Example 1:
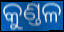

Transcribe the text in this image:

କୁଣ୍ତଳ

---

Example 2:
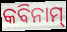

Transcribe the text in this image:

କବିନାମ୍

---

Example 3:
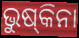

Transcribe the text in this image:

ଭୁଷ୍‌କିନା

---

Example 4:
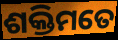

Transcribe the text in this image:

ଶକ୍ତିମତେ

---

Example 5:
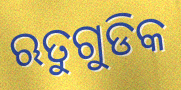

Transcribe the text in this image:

ଋତୁଗୁଡିକ